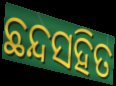
ଛନ୍ଦସହିତ